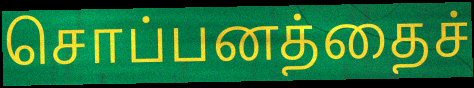
சொப்பனத்தைச்